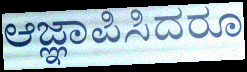
ಆಜ್ಞಾಪಿಸಿದರೂ